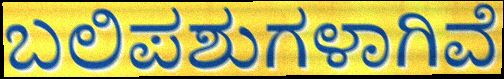
ಬಲಿಪಶುಗಳಾಗಿವೆ